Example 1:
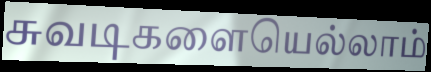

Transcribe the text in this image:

சுவடிகளையெல்லாம்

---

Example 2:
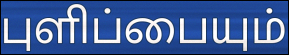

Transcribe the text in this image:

புளிப்பையும்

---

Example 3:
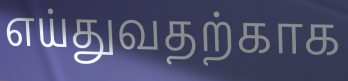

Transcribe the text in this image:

எய்துவதற்காக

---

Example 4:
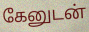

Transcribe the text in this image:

கேனுடன்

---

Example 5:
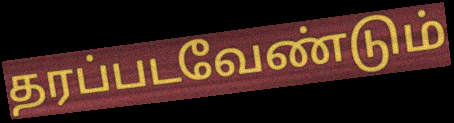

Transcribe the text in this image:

தரப்படவேண்டும்